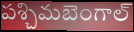
పశ్చిమబెంగాల్